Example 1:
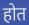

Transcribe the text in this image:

होत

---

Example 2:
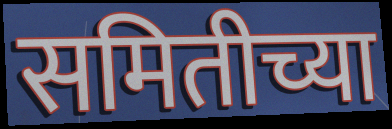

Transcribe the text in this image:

समितीच्‍या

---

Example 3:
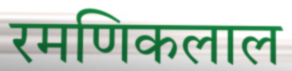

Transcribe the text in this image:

रमणिकलाल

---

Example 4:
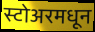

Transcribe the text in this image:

स्टोअरमधून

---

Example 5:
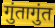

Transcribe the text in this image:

गुंतागुंत